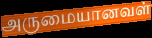
அருமையானவள்